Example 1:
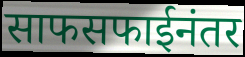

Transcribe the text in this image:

साफसफाईनंतर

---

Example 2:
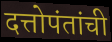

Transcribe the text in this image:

दत्तोपंतांची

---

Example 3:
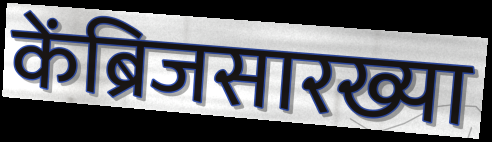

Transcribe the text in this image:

केंब्रिजसारख्या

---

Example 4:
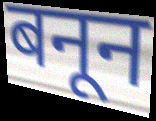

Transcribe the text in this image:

बनून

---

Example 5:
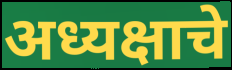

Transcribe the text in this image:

अध्यक्षाचे